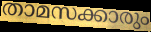
താമസക്കാരും